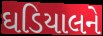
ઘડિયાલને